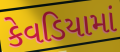
કેવડિયામાં